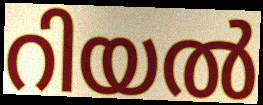
റിയൽ